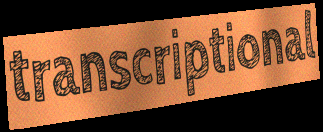
transcriptional